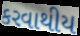
કરવાથીય